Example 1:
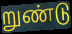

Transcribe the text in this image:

றுண்டு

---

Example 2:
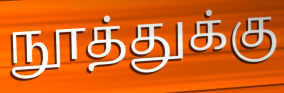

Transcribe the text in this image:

நூத்துக்கு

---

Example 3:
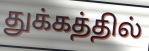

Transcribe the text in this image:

துக்கத்தில்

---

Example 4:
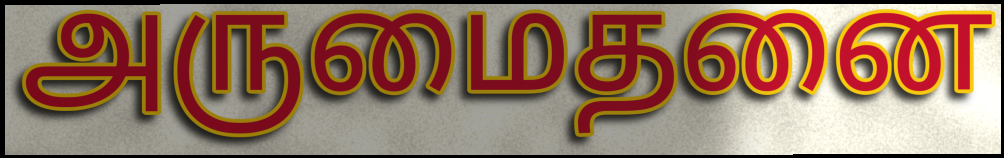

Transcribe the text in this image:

அருமைதனை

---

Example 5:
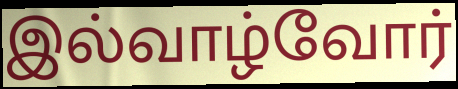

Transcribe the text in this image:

இல்வாழ்வோர்